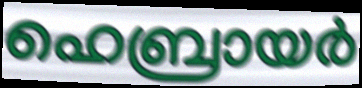
ഹെബ്രായർ